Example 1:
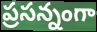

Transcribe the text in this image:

ప్రసన్నంగా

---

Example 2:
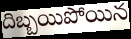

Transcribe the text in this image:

దిబ్బయిపోయిన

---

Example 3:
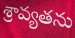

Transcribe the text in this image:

శ్రావ్యతను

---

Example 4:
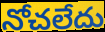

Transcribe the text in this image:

నోచలేదు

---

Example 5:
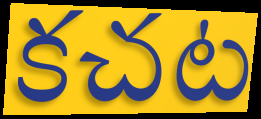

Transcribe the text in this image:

కచట